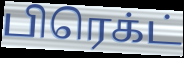
பிரெக்ட்